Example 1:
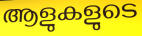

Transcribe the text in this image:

ആളുകളുടെ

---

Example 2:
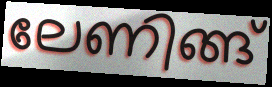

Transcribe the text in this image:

ലേണിങ്ങ്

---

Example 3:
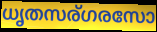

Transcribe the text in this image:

ധൃതസര്ഗരസോ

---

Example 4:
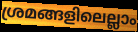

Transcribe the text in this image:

ശ്രമങ്ങളിലെല്ലാം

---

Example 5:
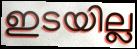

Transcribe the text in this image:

ഇടയില്ല